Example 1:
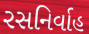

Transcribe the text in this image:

રસનિર્વાહ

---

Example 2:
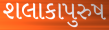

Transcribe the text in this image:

શલાકાપુરુષ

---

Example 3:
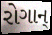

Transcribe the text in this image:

રોગાન્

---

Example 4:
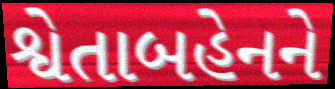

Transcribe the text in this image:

શ્વેતાબહેનને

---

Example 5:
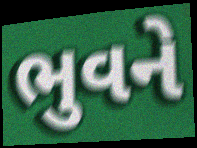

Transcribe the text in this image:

ભુવને